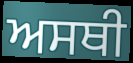
ਅਸਥੀ